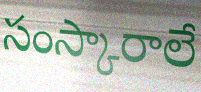
సంస్కారాలే